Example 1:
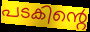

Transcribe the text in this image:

പടകിന്റെ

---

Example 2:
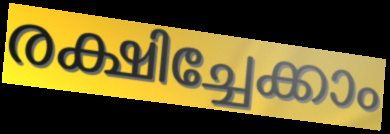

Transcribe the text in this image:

രക്ഷിച്ചേക്കാം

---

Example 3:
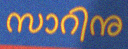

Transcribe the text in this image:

സാറിനു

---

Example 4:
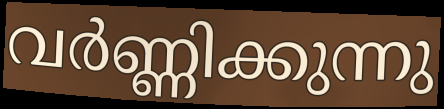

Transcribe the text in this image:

വർണ്ണിക്കുന്നു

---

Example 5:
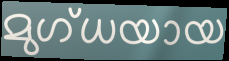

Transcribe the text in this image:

മുഗ്ധയായ